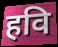
हवि